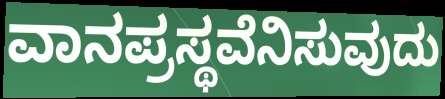
ವಾನಪ್ರಸ್ಥವೆನಿಸುವುದು